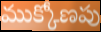
ముక్కోణపు